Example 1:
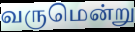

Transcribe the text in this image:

வருமென்று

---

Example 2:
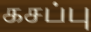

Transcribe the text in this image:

கசப்பு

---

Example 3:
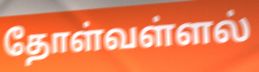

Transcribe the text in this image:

தோள்வள்ளல்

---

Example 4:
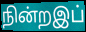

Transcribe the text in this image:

நின்றஇப்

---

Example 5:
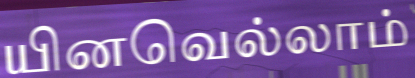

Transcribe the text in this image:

யினவெல்லாம்